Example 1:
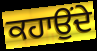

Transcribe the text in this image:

ਕਹਾਉਂਦੇ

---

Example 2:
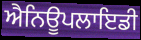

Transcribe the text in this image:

ਐਨਿਊਪਲਾਇਡੀ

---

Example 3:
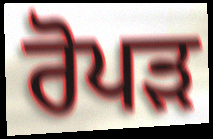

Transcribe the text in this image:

ਰੋਪੜ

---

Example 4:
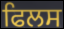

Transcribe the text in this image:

ਫਿਲਸ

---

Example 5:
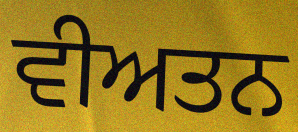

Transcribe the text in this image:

ਵੀਅਤਨ